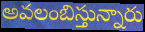
అవలంబిస్తున్నారు